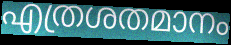
എത്രശതമാനം